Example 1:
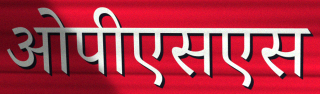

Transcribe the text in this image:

ओपीएसएस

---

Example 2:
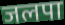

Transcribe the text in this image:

जलपा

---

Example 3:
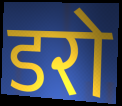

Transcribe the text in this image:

डरो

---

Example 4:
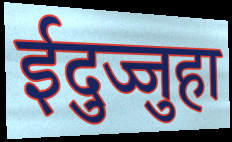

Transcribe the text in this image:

ईदुज्जुहा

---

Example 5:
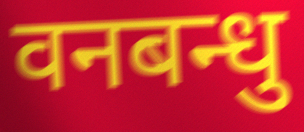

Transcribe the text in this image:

वनबन्धु